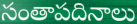
సంతాపదినాలు